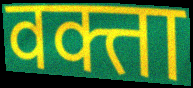
वक्ता